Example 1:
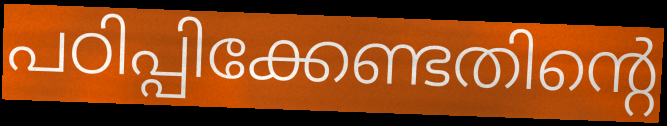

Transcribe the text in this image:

പഠിപ്പിക്കേണ്ടതിന്റെ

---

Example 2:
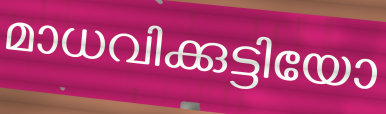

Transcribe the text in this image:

മാധവിക്കുട്ടിയോ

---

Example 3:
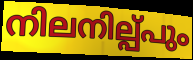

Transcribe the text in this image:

നിലനില്പ്പും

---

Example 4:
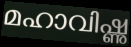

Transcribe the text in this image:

മഹാവിഷ്ണു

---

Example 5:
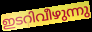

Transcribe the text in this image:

ഇടറിവീഴുന്നു